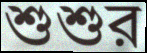
শুশুর